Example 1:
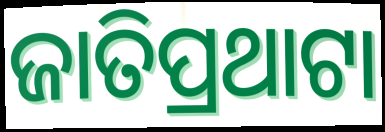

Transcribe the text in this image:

ଜାତିପ୍ରଥାଟା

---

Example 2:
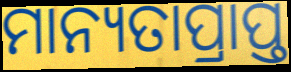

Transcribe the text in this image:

ମାନ୍ୟତାପ୍ରାପ୍ତ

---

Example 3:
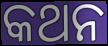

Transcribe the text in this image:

କଥନ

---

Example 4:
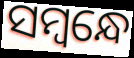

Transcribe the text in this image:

ସମ୍ବନ୍ଧେ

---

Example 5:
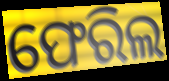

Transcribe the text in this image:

ଫେରିଲ